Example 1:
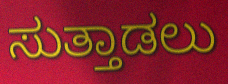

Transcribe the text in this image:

ಸುತ್ತಾಡಲು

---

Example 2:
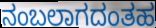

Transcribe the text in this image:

ನಂಬಲಾಗದಂತಹ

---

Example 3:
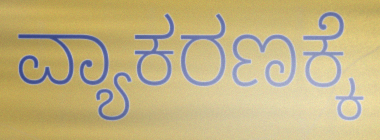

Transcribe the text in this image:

ವ್ಯಾಕರಣಕ್ಕೆ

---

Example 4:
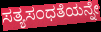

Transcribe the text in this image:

ಸತ್ಯಸಂಧತೆಯನ್ನೇ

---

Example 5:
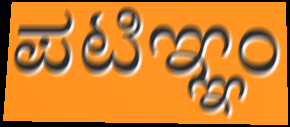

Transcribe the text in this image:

ಪಟಿಞ್ಞಂ